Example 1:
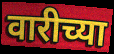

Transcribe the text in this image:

वारीच्या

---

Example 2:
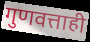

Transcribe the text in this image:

गुणवत्ताही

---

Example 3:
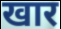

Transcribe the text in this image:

खार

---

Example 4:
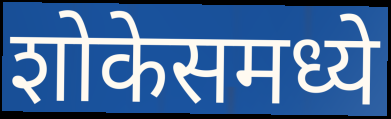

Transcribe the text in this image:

शोकेसमध्ये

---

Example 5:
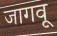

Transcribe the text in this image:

जागवू